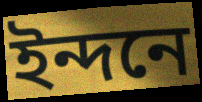
ইন্দনে